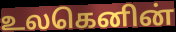
உலகெனின்